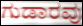
ಗುಡಾರವು